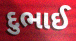
દુભાઈ